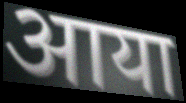
आया